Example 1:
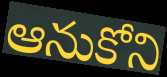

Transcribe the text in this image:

ఆనుకోని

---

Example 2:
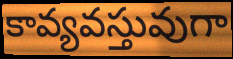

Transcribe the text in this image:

కావ్యవస్తువుగా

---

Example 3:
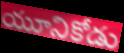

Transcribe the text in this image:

యూనికోడు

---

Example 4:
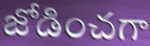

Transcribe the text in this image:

జోడించగా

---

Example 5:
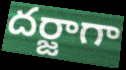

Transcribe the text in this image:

దర్జాగా